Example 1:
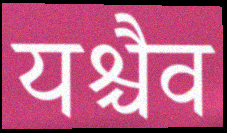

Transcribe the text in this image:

यश्चैव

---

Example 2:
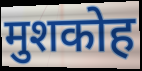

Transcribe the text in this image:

मुशकोह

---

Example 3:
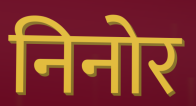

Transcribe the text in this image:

निनोर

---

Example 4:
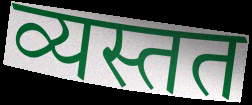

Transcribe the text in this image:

व्यस्तत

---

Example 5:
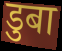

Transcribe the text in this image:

डुबा